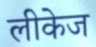
लीकेज